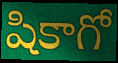
షికాగో